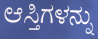
ಆಸ್ತಿಗಳನ್ನು